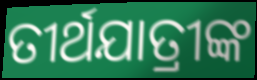
ତୀର୍ଥଯାତ୍ରୀଙ୍କ